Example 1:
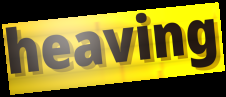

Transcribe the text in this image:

heaving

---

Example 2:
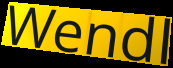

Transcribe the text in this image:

Wendl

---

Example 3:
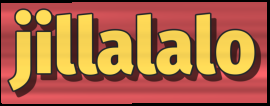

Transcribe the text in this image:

jillalalo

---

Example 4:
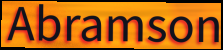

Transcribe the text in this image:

Abramson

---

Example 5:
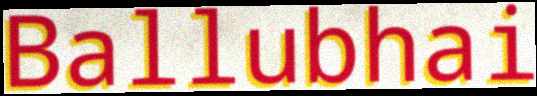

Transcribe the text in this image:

Ballubhai